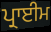
ਪ੍ਰਾਈਮ